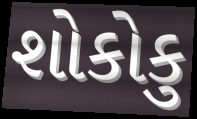
શોકોકુ